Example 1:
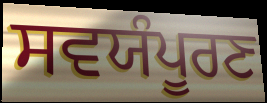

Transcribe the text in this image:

ਸਵਯੰਪੂਰਣ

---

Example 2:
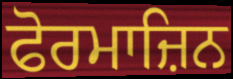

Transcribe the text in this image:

ਫੋਰਮਾਜ਼ਿਨ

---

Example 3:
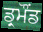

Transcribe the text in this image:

ਡ੍ਰਮੌਂਡ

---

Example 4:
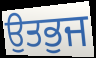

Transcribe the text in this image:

ਉਤਭੁਜ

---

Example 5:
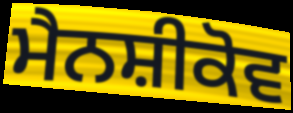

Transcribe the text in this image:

ਮੈਨਸ਼ੀਕੋਵ